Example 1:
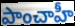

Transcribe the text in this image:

పాంచాహీ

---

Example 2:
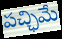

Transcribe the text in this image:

పచ్ఛిమే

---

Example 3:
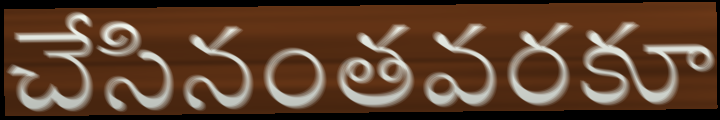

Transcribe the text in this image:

చేసినంతవరకూ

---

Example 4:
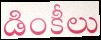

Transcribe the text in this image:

డింకీలు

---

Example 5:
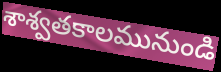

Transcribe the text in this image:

శాశ్వతకాలమునుండి